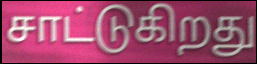
சாட்டுகிறது